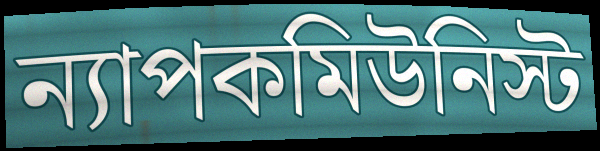
ন্যাপকমিউনিস্ট